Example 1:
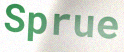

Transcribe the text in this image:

Sprue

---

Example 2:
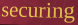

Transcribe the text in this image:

securing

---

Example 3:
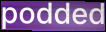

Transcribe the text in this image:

podded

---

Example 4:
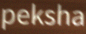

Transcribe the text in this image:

peksha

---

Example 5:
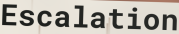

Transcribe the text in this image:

Escalation